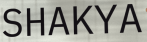
SHAKYA